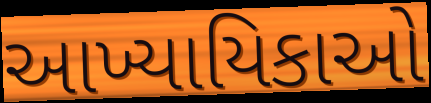
આખ્યાયિકાઓ